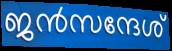
ജൻസന്ദേശ്